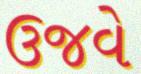
ઉજવે